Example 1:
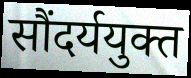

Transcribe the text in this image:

सौंदर्ययुक्त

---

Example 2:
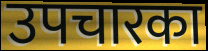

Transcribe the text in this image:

उपचारका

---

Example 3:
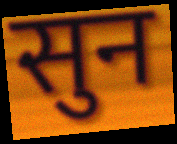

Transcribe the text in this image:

सुन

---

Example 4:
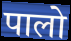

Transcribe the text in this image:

पालो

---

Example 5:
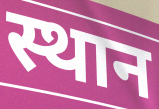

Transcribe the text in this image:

स्थान